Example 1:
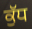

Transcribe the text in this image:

ਕੁੱਧ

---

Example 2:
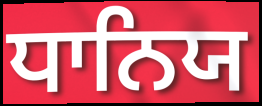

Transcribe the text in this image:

ਧਾਨਿਯ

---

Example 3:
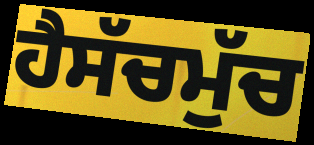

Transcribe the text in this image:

ਹੈਸੱਚਮੁੱਚ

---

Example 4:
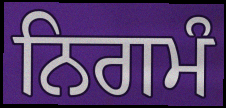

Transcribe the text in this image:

ਨਿਗਮੰ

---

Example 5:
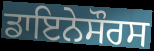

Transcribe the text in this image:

ਡਾਇਨੇਸੌਰਸ